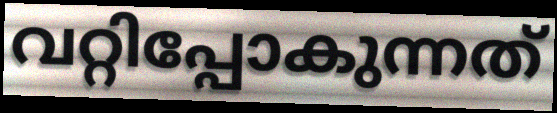
വറ്റിപ്പോകുന്നത്